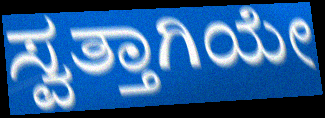
ಸ್ವತ್ತಾಗಿಯೇ